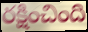
రక్షించింది